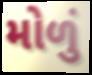
મોળું